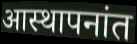
आस्थापनांत